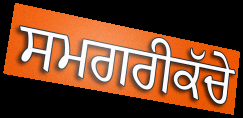
ਸਮਗਰੀਕੱਚੇ